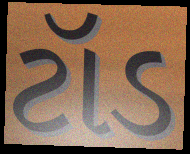
ટૉડ